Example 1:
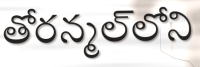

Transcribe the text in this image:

తోరన్మల్‌లోని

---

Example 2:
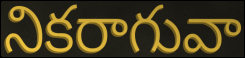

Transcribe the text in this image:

నికరాగువా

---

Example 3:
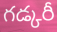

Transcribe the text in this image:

గడ్కరీ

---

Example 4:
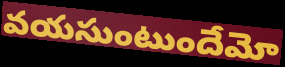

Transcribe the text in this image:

వయసుంటుందేమో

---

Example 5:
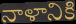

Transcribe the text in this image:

నాళానికి